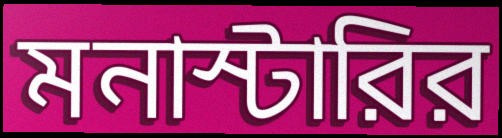
মনাস্টারির